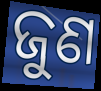
ଜୁଣ